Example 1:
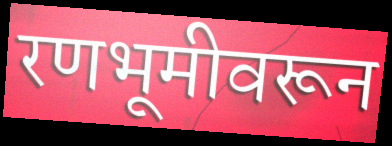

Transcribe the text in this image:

रणभूमीवरून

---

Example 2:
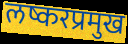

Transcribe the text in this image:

लष्करप्रमुख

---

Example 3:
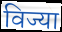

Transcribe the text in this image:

विज्या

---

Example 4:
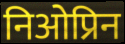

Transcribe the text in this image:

निओप्रिन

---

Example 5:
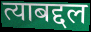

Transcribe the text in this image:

त्याबद्दल